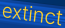
extinct